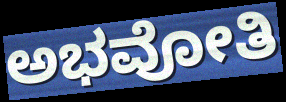
ಅಭವೋತಿ